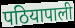
पठियापाली